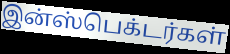
இன்ஸ்பெக்டர்கள்